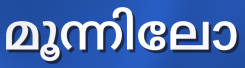
മൂന്നിലോ